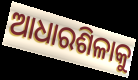
ଆଧାରଶିଳାକୁ